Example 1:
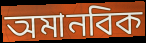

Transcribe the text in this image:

অমানবিক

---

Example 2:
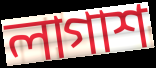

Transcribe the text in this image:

লাগাশ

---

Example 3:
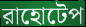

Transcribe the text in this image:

রাহোটেপ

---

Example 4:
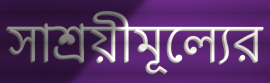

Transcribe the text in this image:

সাশ্রয়ীমূল্যের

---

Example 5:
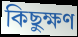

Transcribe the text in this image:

কিছুক্ষণ